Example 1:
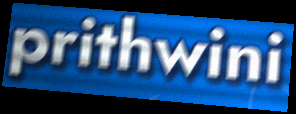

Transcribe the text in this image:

prithwini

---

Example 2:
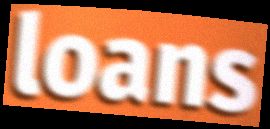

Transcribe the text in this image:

loans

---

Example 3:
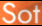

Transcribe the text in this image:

Sot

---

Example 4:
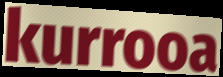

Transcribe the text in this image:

kurrooa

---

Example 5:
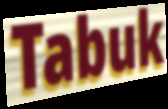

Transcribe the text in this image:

Tabuk